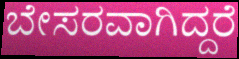
ಬೇಸರವಾಗಿದ್ದರೆ